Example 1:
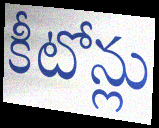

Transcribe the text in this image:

కీటోన్లు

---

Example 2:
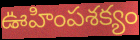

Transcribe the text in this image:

ఊహింపశక్యం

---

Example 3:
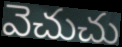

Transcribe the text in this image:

వెచుచు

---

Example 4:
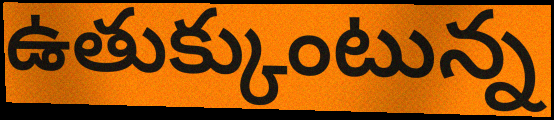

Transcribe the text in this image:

ఉతుక్కుంటున్న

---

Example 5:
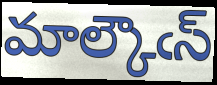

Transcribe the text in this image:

మాల్కౌఁస్